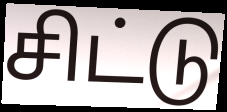
சிட்டு